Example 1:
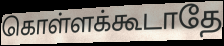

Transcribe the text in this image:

கொள்ளக்கூடாதே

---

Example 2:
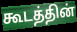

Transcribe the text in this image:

கூடத்தின்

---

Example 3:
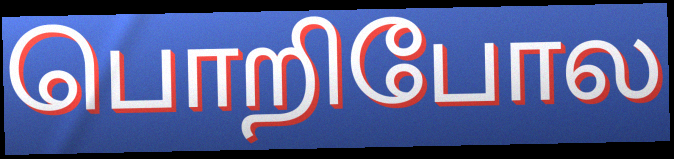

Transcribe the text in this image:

பொறிபோல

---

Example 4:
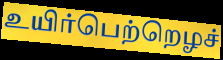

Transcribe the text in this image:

உயிர்பெற்றெழச்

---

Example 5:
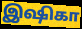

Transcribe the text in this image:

இஷிகா